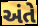
અંતે